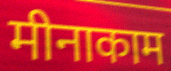
मीनाकाम